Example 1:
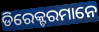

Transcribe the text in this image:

ଡିରେକ୍ଟରମାନେ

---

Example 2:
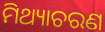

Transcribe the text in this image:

ମିଥ୍ୟାଚରଣ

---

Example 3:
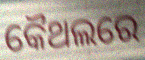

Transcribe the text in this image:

କୈଥଲରେ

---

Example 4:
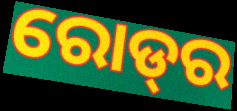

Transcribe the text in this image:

ରୋଡ୍‌ର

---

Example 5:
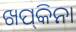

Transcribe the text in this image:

ଖପ୍‍କିନା